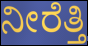
ನೀರೆತ್ತಿ